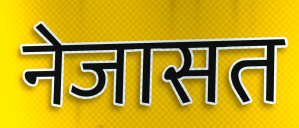
नेजासत